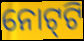
ନୋଟ୍‌ଟି